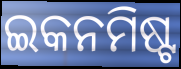
ଇକନମିଷ୍ଟ